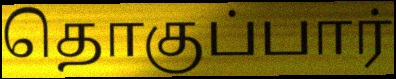
தொகுப்பார்